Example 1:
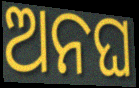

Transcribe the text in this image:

ଅନଘ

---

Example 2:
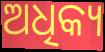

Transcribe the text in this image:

ଅଧିକ୍ୟ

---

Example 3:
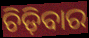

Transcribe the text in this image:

ଚିଡ଼ିବାର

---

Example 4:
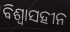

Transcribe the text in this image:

ବିଶ୍ୱାସହୀନ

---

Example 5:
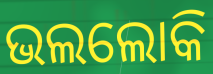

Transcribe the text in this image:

ଭଲଲୋକି